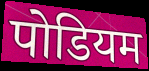
पोडियम